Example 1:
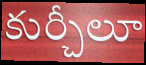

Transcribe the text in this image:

కుర్చీలూ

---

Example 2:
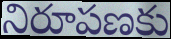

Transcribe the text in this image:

నిరూపణకు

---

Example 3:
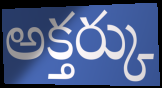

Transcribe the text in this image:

అక్తర్కు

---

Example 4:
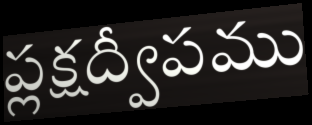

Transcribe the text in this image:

ప్లక్షద్వీపము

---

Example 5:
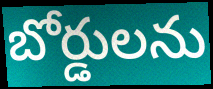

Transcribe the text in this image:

బోర్డులను